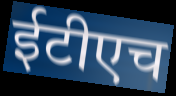
ईटीएच